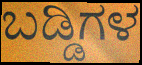
ಬಡ್ಡಿಗಳ